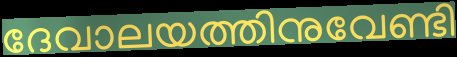
ദേവാലയത്തിനുവേണ്ടി